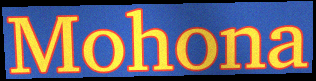
Mohona